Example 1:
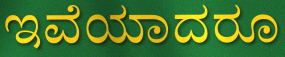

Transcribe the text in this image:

ಇವೆಯಾದರೂ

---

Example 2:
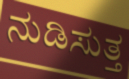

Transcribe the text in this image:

ನುಡಿಸುತ್ತ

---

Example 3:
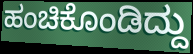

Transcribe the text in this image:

ಹಂಚಿಕೊಂಡಿದ್ದು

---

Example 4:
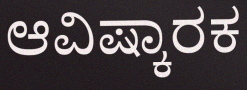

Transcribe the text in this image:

ಆವಿಷ್ಕಾರಕ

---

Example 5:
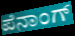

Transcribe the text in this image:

ಪೆನಾಂಗ್